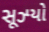
સૂઝ્યો